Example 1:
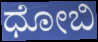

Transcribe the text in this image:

ಧೋಬಿ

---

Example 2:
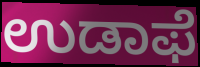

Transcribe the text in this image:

ಉಡಾಫೆ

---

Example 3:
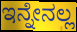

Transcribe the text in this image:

ಇನ್ನೇನಲ್ಲ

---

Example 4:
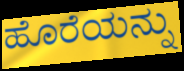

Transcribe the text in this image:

ಹೊರೆಯನ್ನು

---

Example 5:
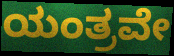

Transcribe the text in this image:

ಯಂತ್ರವೇ